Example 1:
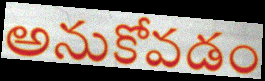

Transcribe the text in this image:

అనుకోవడం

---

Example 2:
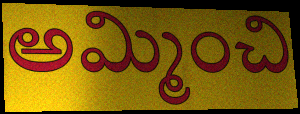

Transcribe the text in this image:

అమ్మించి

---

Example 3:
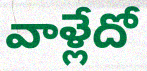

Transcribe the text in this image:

వాళ్లేదో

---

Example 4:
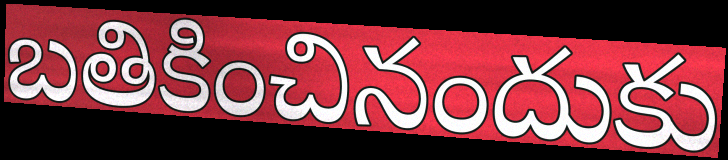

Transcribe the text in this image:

బతికించినందుకు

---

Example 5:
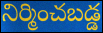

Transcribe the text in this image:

నిర్మించబడ్డ